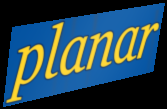
planar